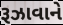
રૂઝાવાને